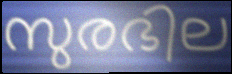
സുരഭില